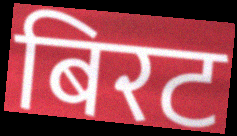
बिरट